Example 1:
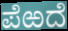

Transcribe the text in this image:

ಪೆಱದೆ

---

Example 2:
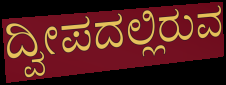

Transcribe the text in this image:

ದ್ವೀಪದಲ್ಲಿರುವ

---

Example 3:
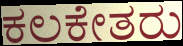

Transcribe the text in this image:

ಕಲಕೇತರು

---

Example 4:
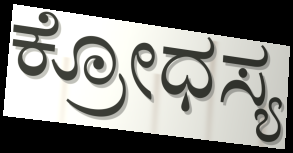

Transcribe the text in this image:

ಕ್ರೋಧಸ್ಯ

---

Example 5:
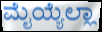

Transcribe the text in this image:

ಮೈಯ್ಯೆಲ್ಲಾ